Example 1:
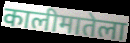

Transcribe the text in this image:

कालीमातेला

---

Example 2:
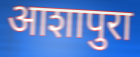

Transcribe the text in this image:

आशापुरा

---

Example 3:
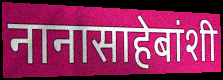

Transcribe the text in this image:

नानासाहेबांशी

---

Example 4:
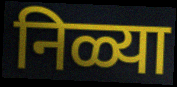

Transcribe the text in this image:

निळ्या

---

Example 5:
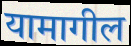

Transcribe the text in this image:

यामागील